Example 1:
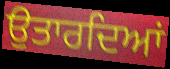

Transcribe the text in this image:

ਉਤਾਰਦਿਆਂ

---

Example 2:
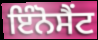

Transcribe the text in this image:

ਇੰਨੋਸੈਂਟ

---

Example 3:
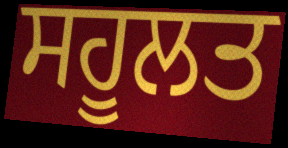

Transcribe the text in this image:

ਸਹੂਲਤ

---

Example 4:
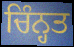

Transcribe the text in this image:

ਚਿੰਨ੍ਹਤ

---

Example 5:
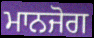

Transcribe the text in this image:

ਮਾਨਜੋਗ